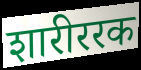
शारीररक